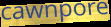
cawnpore